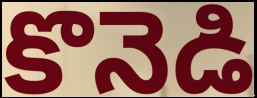
కొనెడి